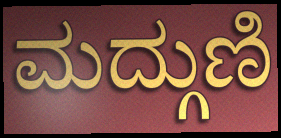
ಮದ್ಗುಣಿ